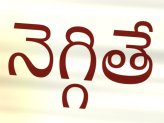
నెగ్గితే